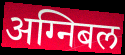
अग्निबल